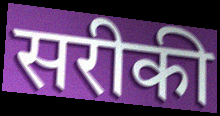
सरीकी